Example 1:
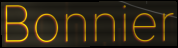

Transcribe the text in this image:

Bonnier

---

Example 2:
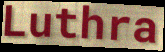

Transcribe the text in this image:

Luthra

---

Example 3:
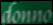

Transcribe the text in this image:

donno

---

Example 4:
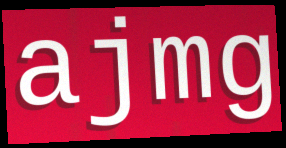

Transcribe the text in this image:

ajmg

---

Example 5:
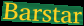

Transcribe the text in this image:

Barstar